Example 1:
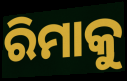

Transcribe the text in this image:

ରିମାକୁ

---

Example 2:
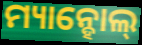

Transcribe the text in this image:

ମ୍ୟାନ୍ହୋଲ୍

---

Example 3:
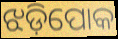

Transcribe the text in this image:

ଝଡ଼ିପୋକ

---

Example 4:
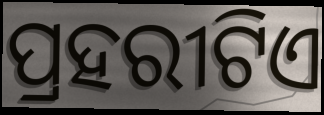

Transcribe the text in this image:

ପ୍ରହରୀଟିଏ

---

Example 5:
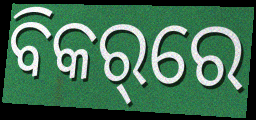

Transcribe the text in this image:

ବିକର୍‌ରେ